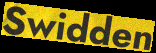
Swidden